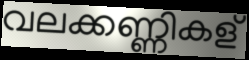
വലക്കണ്ണികള്